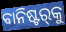
ବାନିଷ୍ଟର୍‍କୁ